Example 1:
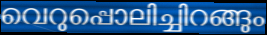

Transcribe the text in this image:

വെറുപ്പൊലിച്ചിറങ്ങും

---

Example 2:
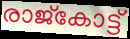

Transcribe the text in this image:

രാജ്കോട്ട്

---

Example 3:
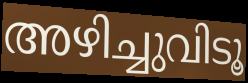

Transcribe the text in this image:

അഴിച്ചുവിടൂ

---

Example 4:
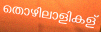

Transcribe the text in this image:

തൊഴിലാളികള്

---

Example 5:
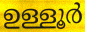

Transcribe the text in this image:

ഉള്ളൂർ